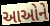
આઓને